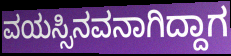
ವಯಸ್ಸಿನವನಾಗಿದ್ದಾಗ